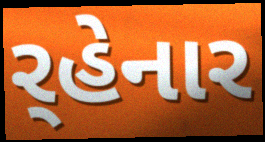
ર્‌હેનાર